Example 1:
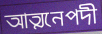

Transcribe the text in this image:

আত্মনেপদী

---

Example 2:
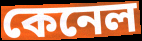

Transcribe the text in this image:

কেনেল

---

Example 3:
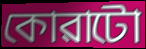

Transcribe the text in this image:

কোৱাটো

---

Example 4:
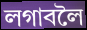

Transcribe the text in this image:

লগাবলৈ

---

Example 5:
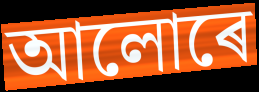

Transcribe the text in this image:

আলোৰে